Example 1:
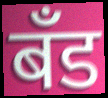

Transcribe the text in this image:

बॅंड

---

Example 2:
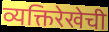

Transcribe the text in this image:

व्यक्तिरेखेची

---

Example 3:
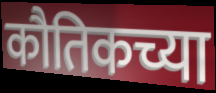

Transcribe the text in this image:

कौतिकच्या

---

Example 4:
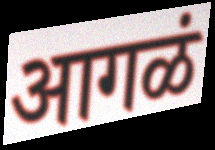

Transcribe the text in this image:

आगळं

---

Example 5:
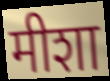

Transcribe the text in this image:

मीशा